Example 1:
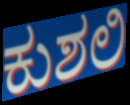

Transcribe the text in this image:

ಕುಶಲಿ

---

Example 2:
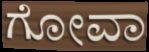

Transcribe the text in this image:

ಗೋವಾ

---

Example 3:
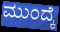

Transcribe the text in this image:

ಮುಂದ್ಕೆ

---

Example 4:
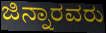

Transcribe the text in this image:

ಜಿನ್ನಾರವರು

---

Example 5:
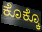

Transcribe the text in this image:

ಕೊಕ್ಕೊ